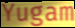
Yugam